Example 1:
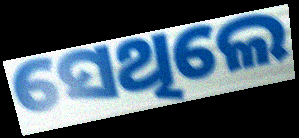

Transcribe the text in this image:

ସେଥିଲେ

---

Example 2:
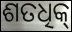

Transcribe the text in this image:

ଶତଧିକ୍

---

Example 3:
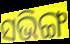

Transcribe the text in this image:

ସଭିଙ୍ଗ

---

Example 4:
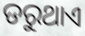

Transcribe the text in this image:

ଡରୁଥାଏ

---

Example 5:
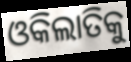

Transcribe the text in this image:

ଓକିଲାତିକୁ